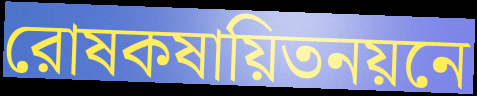
রোষকষায়িতনয়নে